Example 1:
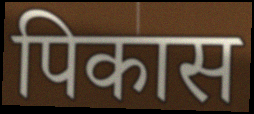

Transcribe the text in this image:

पिकास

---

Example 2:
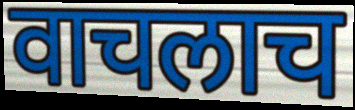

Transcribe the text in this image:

वाचलाच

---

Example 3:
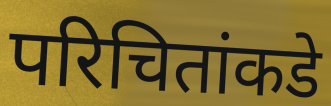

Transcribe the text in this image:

परिचितांकडे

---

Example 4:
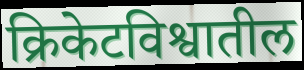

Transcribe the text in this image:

क्रिकेटविश्वातील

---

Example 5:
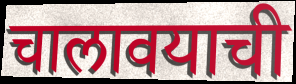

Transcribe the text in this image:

चालावयाची